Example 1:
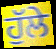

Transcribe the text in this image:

ਹੁੱਲੇ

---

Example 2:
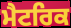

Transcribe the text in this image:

ਮੈਟਰਿਕ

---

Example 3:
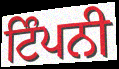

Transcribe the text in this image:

ਟਿੰਪਨੀ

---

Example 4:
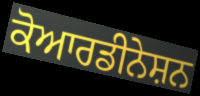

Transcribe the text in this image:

ਕੋਆਰਡੀਨੇਸ਼ਨ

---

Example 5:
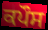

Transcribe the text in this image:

ਕਪੌਸ